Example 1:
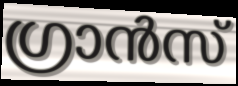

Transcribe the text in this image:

ഗ്രാൻസ്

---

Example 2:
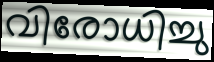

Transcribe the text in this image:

വിരോധിച്ചു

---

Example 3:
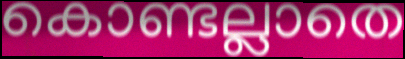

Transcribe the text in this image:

കൊണ്ടല്ലാതെ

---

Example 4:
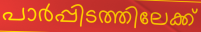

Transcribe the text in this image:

പാർപ്പിടത്തിലേക്ക്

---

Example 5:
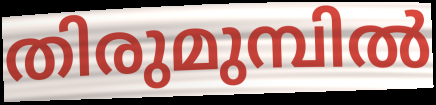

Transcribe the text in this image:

തിരുമുമ്പിൽ